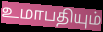
உமாபதியும்